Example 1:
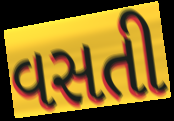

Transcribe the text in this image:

વસતી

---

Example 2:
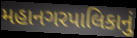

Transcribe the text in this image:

મહાનગરપાલિકાનું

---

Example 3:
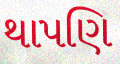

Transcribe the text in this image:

થાપણિ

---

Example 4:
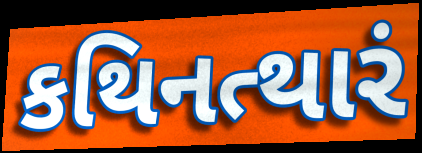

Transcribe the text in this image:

કથિનત્થારં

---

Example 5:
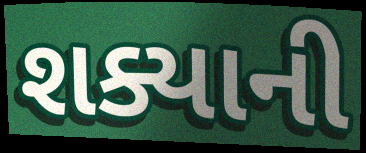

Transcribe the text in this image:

શક્યાની